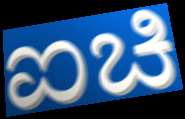
ಐಚಿ